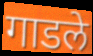
गाडले